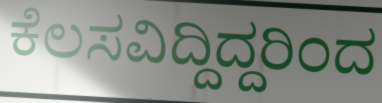
ಕೆಲಸವಿದ್ದಿದ್ದರಿಂದ